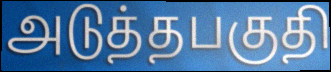
அடுத்தபகுதி